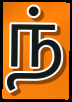
ந்